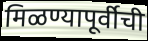
मिळण्यापूर्वीची